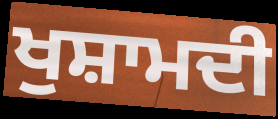
ਖੁਸ਼ਾਮਦੀ